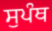
ਸੁਪੰਥ